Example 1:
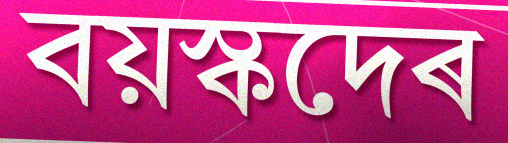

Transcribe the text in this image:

বয়স্কদেৰ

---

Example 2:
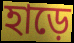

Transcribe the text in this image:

হাড়ে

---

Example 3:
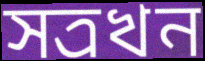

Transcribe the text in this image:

সত্ৰখন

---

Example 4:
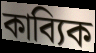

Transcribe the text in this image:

কাব্যিক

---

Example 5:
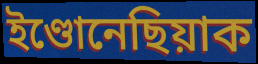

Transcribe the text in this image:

ইণ্ডোনেছিয়াক